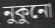
নুকুনো